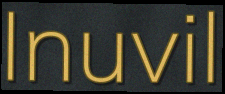
Inuvil